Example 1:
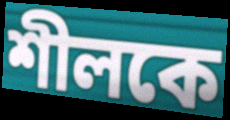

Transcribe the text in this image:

শীলকে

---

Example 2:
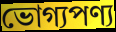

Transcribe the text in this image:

ভোগ্যপণ্য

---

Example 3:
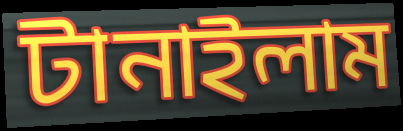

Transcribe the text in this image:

টানাইলাম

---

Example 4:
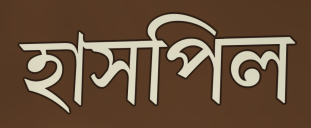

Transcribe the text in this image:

হাসপিল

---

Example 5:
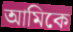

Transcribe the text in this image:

আমিকে